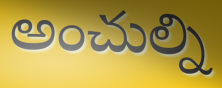
అంచుల్ని